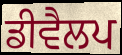
ਡੀਵੈਲਪ